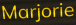
Marjorie